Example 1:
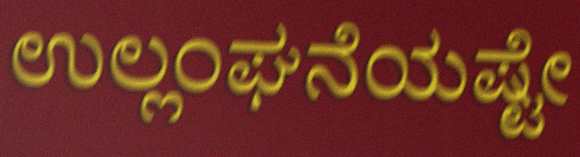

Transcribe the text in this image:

ಉಲ್ಲಂಘನೆಯಷ್ಟೇ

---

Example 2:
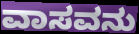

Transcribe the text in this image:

ವಾಸವನು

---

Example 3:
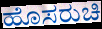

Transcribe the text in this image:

ಹೊಸರುಚಿ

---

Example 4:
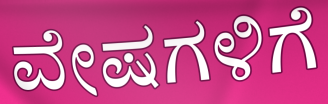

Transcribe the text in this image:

ವೇಷಗಳಿಗೆ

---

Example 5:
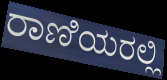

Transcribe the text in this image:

ರಾಣಿಯರಲ್ಲಿ